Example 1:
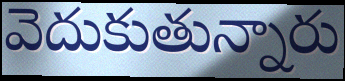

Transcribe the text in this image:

వెదుకుతున్నారు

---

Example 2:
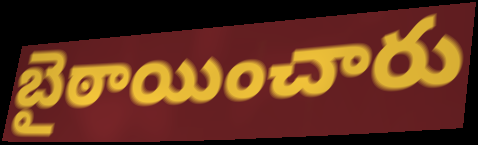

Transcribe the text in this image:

బైఠాయించారు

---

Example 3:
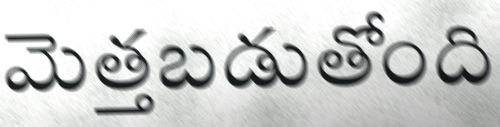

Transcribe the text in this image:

మెత్తబడుతోంది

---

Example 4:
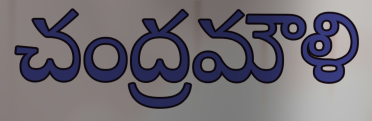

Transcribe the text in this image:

చంద్రమౌళి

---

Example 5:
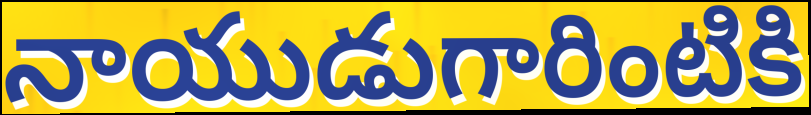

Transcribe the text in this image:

నాయుడుగారింటికి